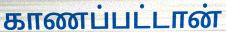
காணப்பட்டான்